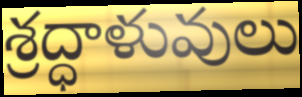
శ్రద్ధాళువులు